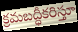
క్రమబద్ధీకరిస్తూ